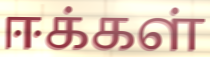
ஈக்கள்